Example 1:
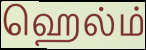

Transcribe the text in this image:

ஹெல்ம்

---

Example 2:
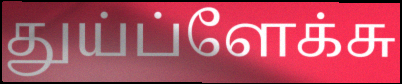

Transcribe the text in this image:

துய்ப்ளேக்சு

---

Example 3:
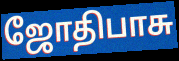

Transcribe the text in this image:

ஜோதிபாசு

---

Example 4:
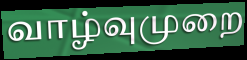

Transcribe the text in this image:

வாழ்வுமுறை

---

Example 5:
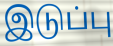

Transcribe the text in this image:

இடுப்பு